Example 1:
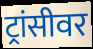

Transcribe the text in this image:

ट्रांसीवर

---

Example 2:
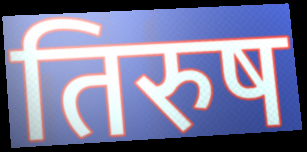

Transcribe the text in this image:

तिरुष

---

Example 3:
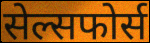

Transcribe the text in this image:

सेल्सफोर्स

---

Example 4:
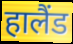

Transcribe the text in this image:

हालैंड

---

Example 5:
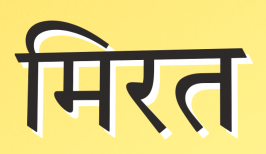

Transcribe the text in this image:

मिरत